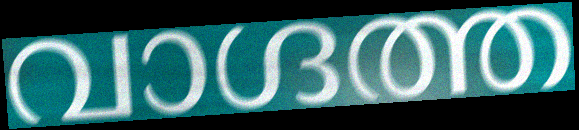
വാഗ്ദത്ത